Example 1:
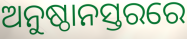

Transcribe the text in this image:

ଅନୁଷ୍ଠାନସ୍ତରରେ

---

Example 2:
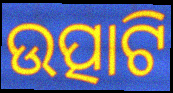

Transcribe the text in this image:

ଉତ୍ପାଟି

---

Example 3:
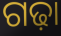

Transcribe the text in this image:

ଗଢ଼ା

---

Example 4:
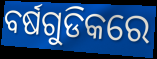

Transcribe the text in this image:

ବର୍ଷଗୁଡିକରେ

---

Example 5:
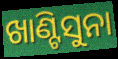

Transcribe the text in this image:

ଖାଣ୍ଟିସୁନା